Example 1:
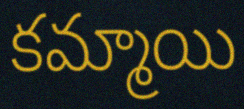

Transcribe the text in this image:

కమ్మాయి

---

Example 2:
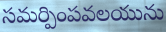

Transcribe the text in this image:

సమర్పింపవలయును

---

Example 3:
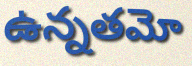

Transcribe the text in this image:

ఉన్నతమో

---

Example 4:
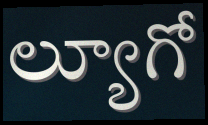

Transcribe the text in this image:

ల్యూగో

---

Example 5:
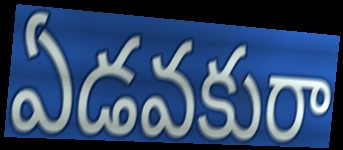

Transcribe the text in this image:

ఏడవకురా